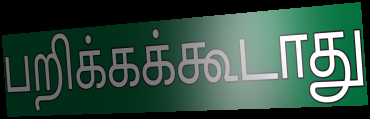
பறிக்கக்கூடாது